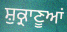
ਸ਼ੁਕ੍ਰਾਣੂਆਂ